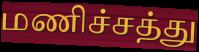
மணிச்சத்து